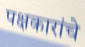
पक्षकारांचे